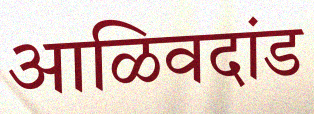
आळिवदांड